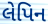
લેપિન